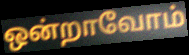
ஒன்றாவோம்